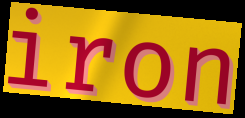
iron